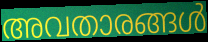
അവതാരങ്ങൾ